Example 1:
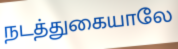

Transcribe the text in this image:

நடத்துகையாலே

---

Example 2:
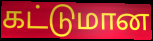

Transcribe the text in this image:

கட்டுமான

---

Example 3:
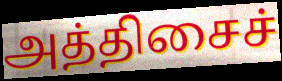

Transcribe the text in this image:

அத்திசைச்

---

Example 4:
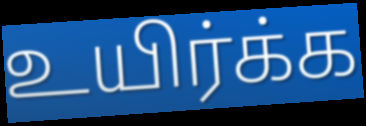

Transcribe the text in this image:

உயிர்க்க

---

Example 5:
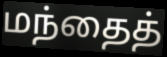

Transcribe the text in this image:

மந்தைத்